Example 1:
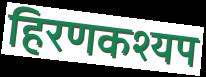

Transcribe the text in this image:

हिरणकश्यप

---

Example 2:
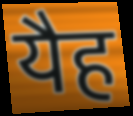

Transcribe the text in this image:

यैह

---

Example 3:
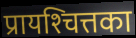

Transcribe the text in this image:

प्रायश्चित्तका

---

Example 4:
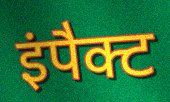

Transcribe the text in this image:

इंपैक्ट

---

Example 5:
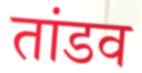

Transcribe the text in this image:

तांडव